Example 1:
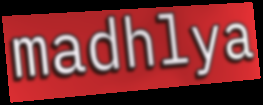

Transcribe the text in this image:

madhlya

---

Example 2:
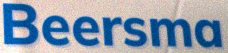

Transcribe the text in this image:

Beersma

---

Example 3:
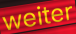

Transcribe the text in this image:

weiter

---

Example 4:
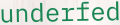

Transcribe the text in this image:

underfed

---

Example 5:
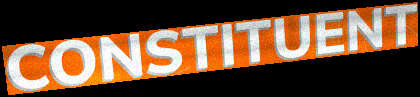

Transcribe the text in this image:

CONSTITUENT